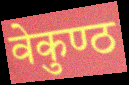
वेकुण्ठ